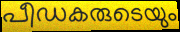
പീഡകരുടെയും